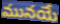
మునయే